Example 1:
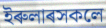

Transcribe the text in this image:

ইৰুলাৰসকলে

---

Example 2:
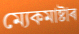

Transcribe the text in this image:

ম্যেকমাষ্টাৰ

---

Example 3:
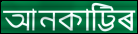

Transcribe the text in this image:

আনকাট্টিৰ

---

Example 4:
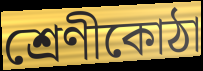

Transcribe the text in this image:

শ্ৰেণীকোঠা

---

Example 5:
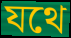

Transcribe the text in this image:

যথে